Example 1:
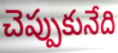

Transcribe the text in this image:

చెప్పుకునేది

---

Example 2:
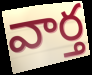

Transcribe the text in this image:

వార్త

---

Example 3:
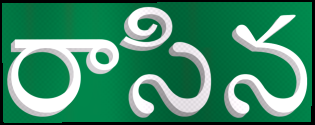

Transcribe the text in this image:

రాసిన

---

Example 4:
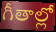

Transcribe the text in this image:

గీతాల్లో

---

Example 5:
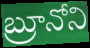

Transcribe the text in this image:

బ్రూనోని